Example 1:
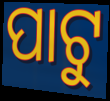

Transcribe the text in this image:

ପାଟୁ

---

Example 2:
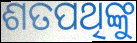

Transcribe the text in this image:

ଶତପଥିଙ୍କୁ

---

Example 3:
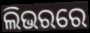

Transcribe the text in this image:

ଲିଭରରେ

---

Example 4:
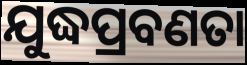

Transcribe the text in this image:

ଯୁଦ୍ଧପ୍ରବଣତା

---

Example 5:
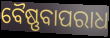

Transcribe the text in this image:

ବୈଷ୍ଣବାପରାଧ